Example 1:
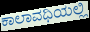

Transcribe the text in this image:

ಕಾಲಾವಧಿಯಲ್ಲಿ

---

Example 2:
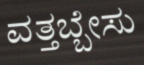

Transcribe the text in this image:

ವತ್ತಬ್ಬೇಸು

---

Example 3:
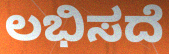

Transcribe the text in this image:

ಲಭಿಸದೆ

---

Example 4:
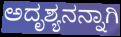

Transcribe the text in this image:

ಅದೃಶ್ಯನನ್ನಾಗಿ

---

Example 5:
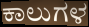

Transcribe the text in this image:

ಕಾಲುಗಳ